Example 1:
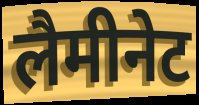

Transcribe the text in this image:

लैमीनेट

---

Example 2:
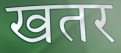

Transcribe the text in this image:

खतर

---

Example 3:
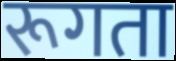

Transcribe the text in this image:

रूगता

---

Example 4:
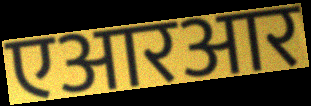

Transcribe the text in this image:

एआरआर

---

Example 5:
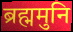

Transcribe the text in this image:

ब्रह्ममुनि